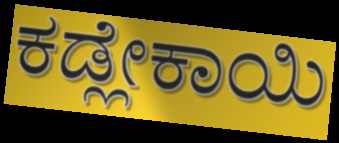
ಕಡ್ಲೇಕಾಯಿ